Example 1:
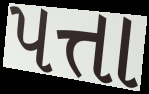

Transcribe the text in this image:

પત્તા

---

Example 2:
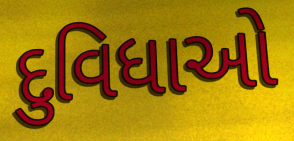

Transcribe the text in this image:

દુવિધાઓ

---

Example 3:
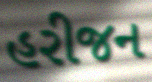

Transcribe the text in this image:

હરીજન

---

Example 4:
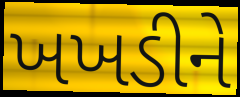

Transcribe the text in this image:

ખખડીને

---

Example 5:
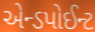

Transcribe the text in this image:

એન્ડપોઈન્ટ